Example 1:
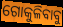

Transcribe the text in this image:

ଗୋକୁଳିବାବୁ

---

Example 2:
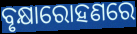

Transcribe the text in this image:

ବୃକ୍ଷାରୋହଣରେ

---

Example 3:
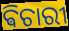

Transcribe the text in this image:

ଵିଚାରୀ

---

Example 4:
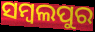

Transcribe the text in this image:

ସମ୍ବଲପୁର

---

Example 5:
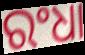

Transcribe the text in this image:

ରଂଧା